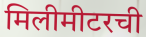
मिलीमीटरची